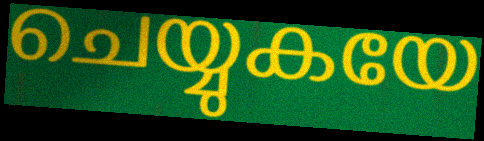
ചെയ്യുകയേ